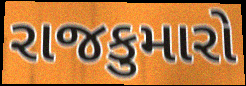
રાજકુમારો